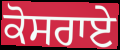
ਕੋਸਰਾਏ